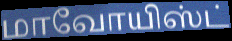
மாவோயிஸ்ட்